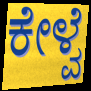
ಕೇಳ್ವೆ